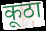
कूठा